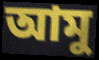
আমু